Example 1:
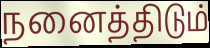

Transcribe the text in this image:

நனைத்திடும்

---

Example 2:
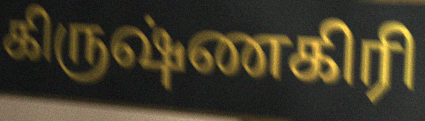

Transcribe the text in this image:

கிருஷ்ணகிரி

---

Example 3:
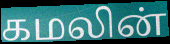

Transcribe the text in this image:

கமலின்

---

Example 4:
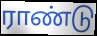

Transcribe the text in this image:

ராண்டு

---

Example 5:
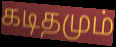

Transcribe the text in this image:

கடிதமும்